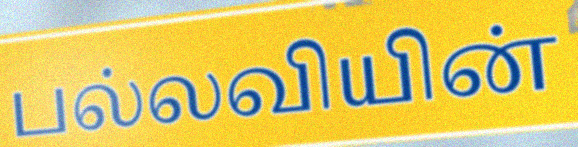
பல்லவியின்